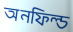
অনফিল্ড